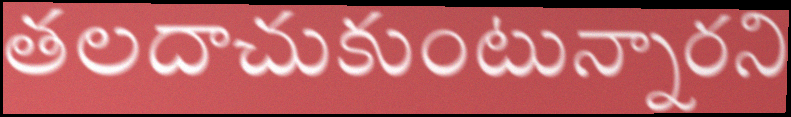
తలదాచుకుంటున్నారని